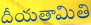
దీయతామితి